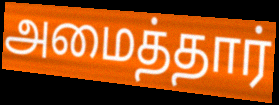
அமைத்தார்